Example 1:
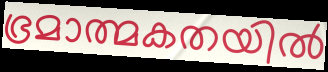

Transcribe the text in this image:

ഭ്രമാത്മകതയിൽ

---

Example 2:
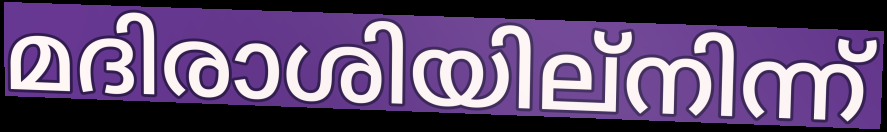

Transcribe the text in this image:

മദിരാശിയില്നിന്ന്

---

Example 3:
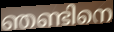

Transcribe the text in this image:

ഞണ്ടിനെ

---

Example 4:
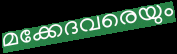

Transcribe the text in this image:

മക്കേദവരെയും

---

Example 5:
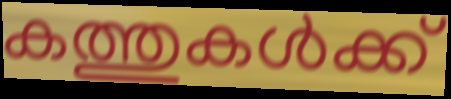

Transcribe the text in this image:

കത്തുകൾക്ക്